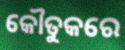
କୌତୁକରେ